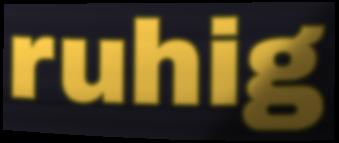
ruhig